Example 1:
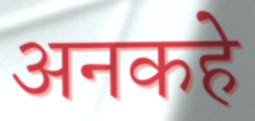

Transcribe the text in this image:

अनकहे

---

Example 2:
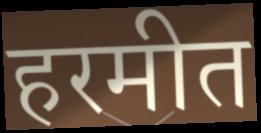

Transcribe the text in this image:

हरमीत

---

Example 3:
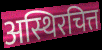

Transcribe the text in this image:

अस्थिरचित्त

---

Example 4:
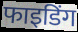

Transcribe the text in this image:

फाइडिंग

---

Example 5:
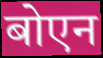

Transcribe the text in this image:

बोएन